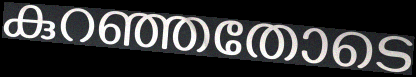
കുറഞ്ഞതോടെ